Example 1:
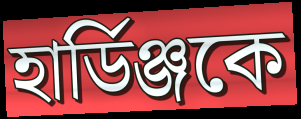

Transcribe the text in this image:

হার্ডিঞ্জকে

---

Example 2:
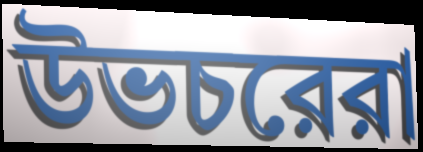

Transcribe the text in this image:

উভচরেরা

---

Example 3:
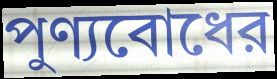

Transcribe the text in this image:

পুণ্যবোধের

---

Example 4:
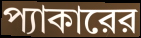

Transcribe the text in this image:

প্যাকারের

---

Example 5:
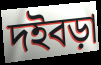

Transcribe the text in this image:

দইবড়া